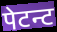
पेटन्ट